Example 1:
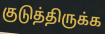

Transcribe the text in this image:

குடுத்திருக்க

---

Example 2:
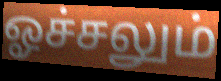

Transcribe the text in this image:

ஓச்சலும்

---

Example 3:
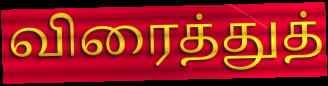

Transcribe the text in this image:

விரைத்துத்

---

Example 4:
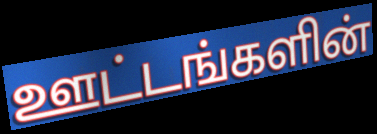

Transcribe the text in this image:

ஊட்டங்களின்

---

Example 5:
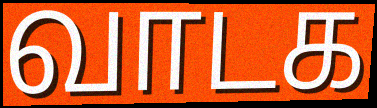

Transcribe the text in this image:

வாடக